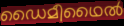
ഡൈമീഥൈൽ